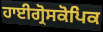
ਹਾਈਗ੍ਰੋਸਕੋਪਿਕ